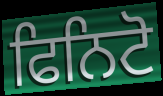
ਫਿਨਿਟੋ